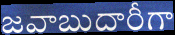
జవాబుదారీగా